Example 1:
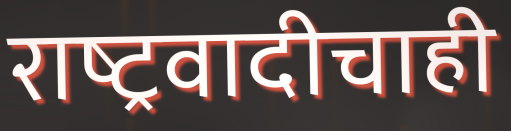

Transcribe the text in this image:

राष्ट्रवादीचाही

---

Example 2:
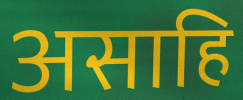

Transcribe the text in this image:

असाहि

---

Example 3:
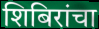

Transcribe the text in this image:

शिबिरांचा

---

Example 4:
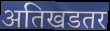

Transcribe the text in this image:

अतिखडतर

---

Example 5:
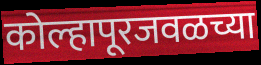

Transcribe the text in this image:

कोल्हापूरजवळच्या